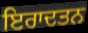
ਇਰਾਦਤਨ